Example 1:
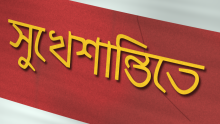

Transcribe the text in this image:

সুখেশান্তিতে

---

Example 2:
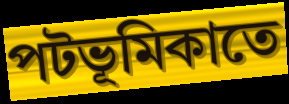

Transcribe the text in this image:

পটভূমিকাতে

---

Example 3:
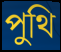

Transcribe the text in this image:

পুথি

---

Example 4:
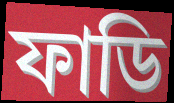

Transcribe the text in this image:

ফাডি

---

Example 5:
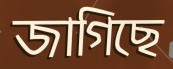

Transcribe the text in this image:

জাগিছে